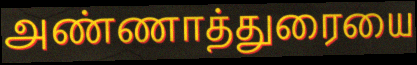
அண்ணாத்துரையை